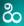
ಹಿ